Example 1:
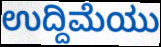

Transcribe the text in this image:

ಉದ್ದಿಮೆಯು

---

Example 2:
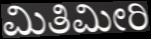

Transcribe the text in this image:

ಮಿತಿಮೀರಿ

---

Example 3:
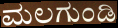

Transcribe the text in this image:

ಮಲಗುಂಡಿ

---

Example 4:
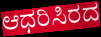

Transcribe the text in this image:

ಆಧರಿಸಿರದ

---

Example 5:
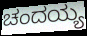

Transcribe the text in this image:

ಚಂದಯ್ಯ